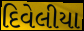
દિવેલીયા